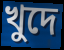
খুদে